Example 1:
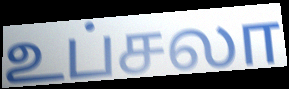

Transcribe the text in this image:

உப்சலா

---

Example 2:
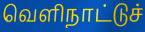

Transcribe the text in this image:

வெளிநாட்டுச்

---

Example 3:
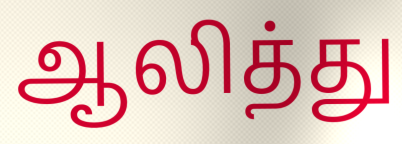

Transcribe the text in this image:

ஆலித்து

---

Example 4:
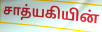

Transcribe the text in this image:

சாத்யகியின்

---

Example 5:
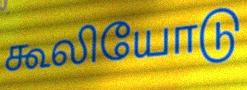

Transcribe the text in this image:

கூலியோடு